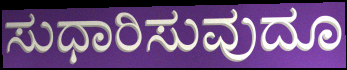
ಸುಧಾರಿಸುವುದೂ